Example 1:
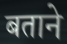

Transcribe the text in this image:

बताने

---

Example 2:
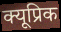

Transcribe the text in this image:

क्यूप्रिक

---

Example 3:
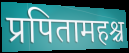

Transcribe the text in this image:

प्रपितामहश्च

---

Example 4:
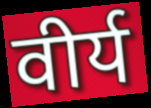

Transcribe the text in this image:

वीर्य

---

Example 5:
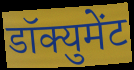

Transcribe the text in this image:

डॉक्युमेंट